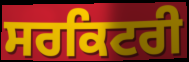
ਸਰਕਿਟਰੀ